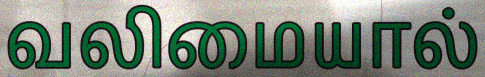
வலிமையால்